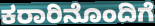
ಕರಾರಿನೊಂದಿಗೆ